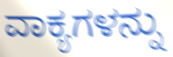
ವಾಕ್ಯಗಳನ್ನು